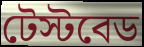
টেস্টবেড